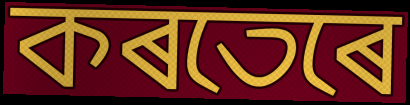
কৰতেৰে